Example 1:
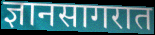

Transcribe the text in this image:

ज्ञानसागरात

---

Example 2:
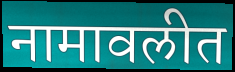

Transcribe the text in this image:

नामावलीत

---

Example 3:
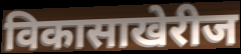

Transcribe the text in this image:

विकासाखेरीज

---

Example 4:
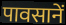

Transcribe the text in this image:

पावसानें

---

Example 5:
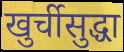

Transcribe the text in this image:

खुर्चीसुद्धा